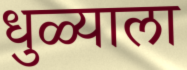
धुळ्याला